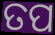
ତପ